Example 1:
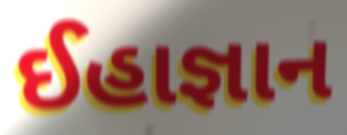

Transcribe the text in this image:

ઈહાજ્ઞાન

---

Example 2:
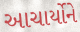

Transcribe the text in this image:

આચાર્યોને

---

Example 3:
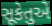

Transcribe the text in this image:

સૂકેતુએ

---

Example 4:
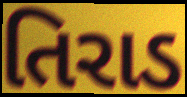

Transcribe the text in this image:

તિરાડ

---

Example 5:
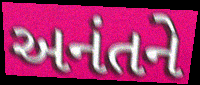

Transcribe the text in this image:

અનંતને